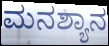
ಮನಶ್ಯಾನ